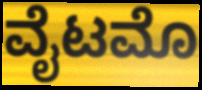
ವೈಟಮೊ